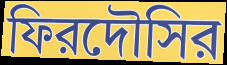
ফিরদৌসির